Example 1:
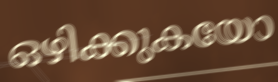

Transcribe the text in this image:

ഒഴിക്കുകയോ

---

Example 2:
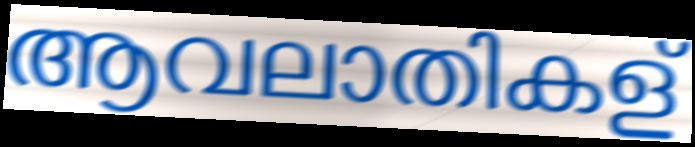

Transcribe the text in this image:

ആവലാതികള്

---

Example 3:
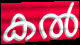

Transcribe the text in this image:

കൽ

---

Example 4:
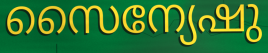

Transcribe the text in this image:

സൈന്യേഷു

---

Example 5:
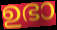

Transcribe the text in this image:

ഉഭാ